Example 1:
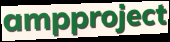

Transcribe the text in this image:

ampproject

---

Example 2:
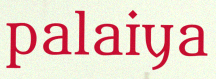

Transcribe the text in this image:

palaiya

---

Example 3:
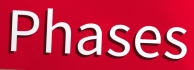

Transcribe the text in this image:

Phases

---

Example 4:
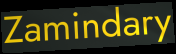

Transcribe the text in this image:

Zamindary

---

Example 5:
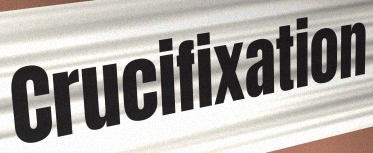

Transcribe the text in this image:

Crucifixation